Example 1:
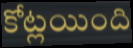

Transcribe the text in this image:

కోట్లయింది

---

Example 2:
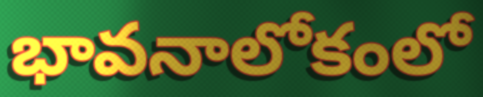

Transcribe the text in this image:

భావనాలోకంలో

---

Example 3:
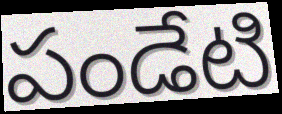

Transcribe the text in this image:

పండేటి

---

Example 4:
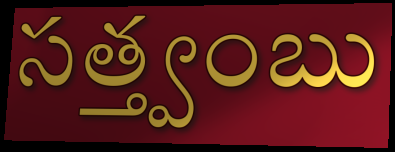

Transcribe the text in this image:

సత్త్వంబు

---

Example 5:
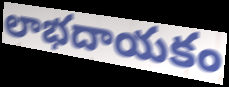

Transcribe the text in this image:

లాభదాయకం